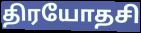
திரயோதசி